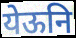
येऊनि